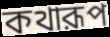
কথারূপ